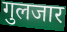
गुलजार